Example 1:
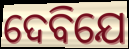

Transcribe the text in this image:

ଦେବିଯେ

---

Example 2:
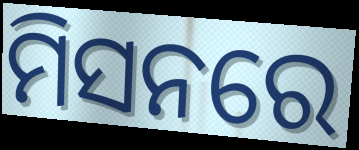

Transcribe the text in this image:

ମିସନରେ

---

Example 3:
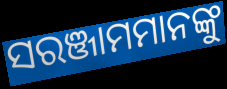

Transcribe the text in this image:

ସରଞ୍ଜାମମାନଙ୍କୁ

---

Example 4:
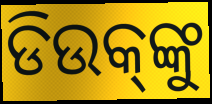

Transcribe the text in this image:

ଡିଉକ୍‌ଙ୍କୁ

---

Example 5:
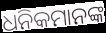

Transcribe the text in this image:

ଧନିକମାନଙ୍କ